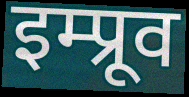
इम्प्रूव